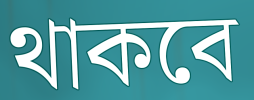
থাকবে